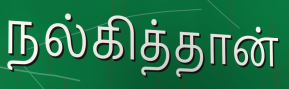
நல்கித்தான்